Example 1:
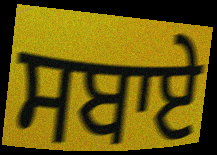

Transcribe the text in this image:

ਸਬਾਏ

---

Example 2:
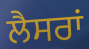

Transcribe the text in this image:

ਲੈਸਰਾਂ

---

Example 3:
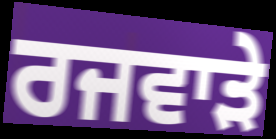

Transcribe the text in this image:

ਰਜਵਾੜੇ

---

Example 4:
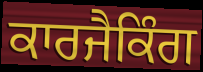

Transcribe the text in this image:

ਕਾਰਜੈਕਿੰਗ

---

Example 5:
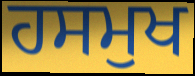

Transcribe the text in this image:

ਹਸਮੁਖ